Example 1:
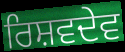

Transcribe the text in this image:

ਰਿਸ਼ਵਦੇਵ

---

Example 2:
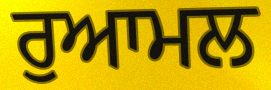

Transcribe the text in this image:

ਰੁਆਮਲ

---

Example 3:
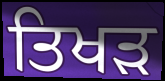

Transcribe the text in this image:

ਤਿਖੜ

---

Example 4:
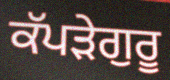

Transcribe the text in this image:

ਕੱਪੜੇਗੁਰੂ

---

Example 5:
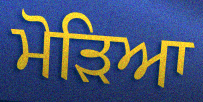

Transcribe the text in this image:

ਮੋੜਿਆ